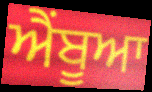
ਐਂਬੂਆ